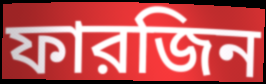
ফারজিন